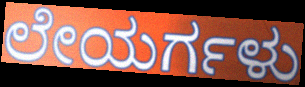
ಲೇಯರ್ಗಳು